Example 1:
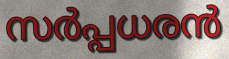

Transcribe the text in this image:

സർപ്പധരൻ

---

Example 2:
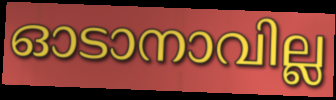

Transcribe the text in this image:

ഓടാനാവില്ല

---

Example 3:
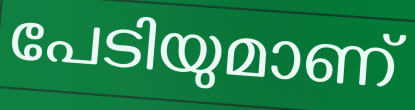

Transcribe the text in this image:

പേടിയുമാണ്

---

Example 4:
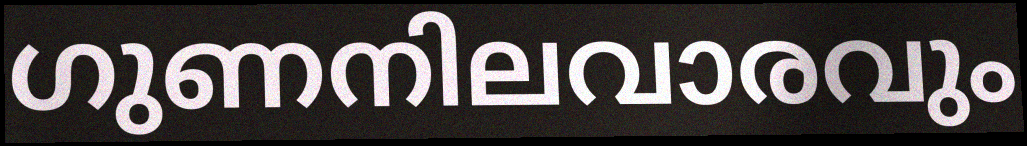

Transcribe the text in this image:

ഗുണനിലവാരവും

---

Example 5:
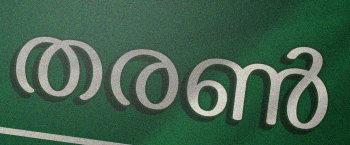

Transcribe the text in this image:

തരൺ